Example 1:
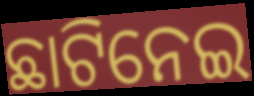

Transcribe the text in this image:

ଛାଟିନେଇ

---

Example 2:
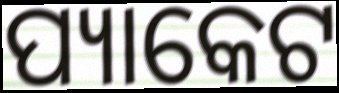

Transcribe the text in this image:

ପ୍ଯାକେଟ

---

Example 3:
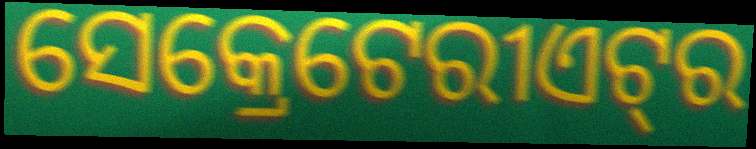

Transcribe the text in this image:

ସେକ୍ରେଟେରୀଏଟ୍‍ର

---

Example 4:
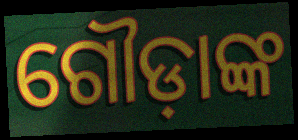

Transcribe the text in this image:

ଗୌଡ଼ାଙ୍କ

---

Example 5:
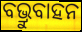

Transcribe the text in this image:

ବଭ୍ରୁବାହନ